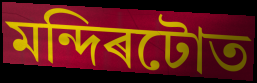
মন্দিৰটোত